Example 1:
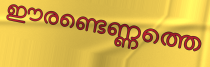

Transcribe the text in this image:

ഈരണ്ടെണ്ണത്തെ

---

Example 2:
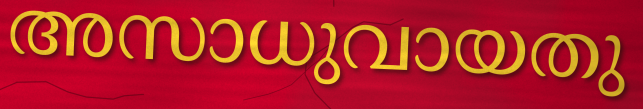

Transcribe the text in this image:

അസാധുവായതു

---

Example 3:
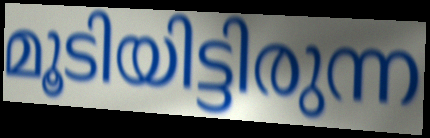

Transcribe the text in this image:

മൂടിയിട്ടിരുന്ന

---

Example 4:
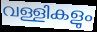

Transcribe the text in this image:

വള്ളികളും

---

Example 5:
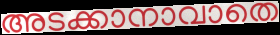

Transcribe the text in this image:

അടക്കാനാവാതെ